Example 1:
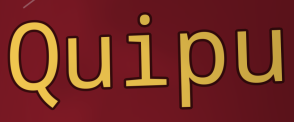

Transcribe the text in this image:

Quipu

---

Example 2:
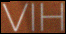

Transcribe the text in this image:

VIH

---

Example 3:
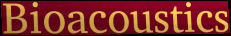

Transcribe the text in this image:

Bioacoustics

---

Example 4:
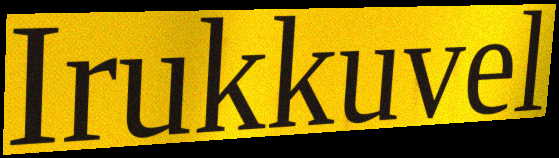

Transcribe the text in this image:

Irukkuvel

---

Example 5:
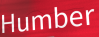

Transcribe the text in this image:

Humber